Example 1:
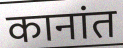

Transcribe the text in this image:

कानांत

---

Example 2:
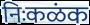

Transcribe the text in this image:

निःकळंक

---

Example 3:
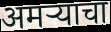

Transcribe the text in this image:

अमऱ्याचा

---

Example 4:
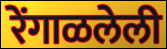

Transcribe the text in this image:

रेंगाळलेली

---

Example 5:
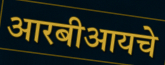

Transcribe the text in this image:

आरबीआयचे